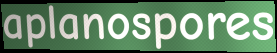
aplanospores